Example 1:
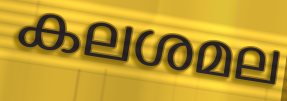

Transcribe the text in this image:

കലശമല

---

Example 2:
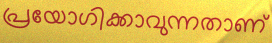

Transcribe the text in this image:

പ്രയോഗിക്കാവുന്നതാണ്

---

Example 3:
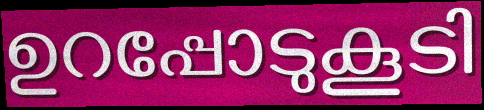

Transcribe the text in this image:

ഉറപ്പോടുകൂടി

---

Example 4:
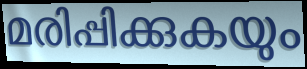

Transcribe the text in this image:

മരിപ്പിക്കുകയും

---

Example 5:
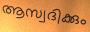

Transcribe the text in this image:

ആസ്വദിക്കും